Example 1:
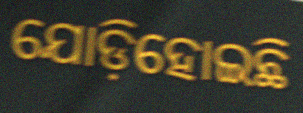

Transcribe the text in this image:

ଯୋଡ଼ିହୋଇଛି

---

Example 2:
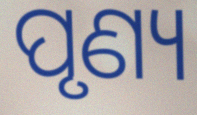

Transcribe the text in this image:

ପୃଣ୍ୟ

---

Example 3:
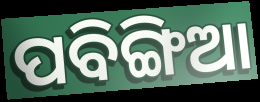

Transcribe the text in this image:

ପବିଙ୍ଗିଆ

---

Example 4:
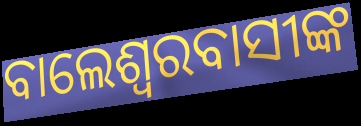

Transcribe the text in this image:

ବାଲେଶ୍ବରବାସୀଙ୍କ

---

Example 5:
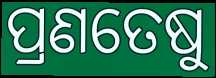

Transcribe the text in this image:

ପ୍ରଣତେଷୁ